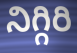
నిగ్గిరి